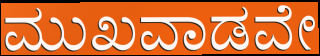
ಮುಖವಾಡವೇ